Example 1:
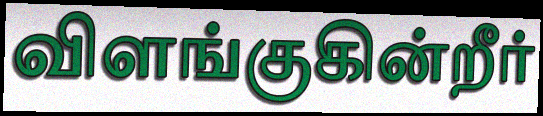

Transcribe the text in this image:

விளங்குகின்றீர்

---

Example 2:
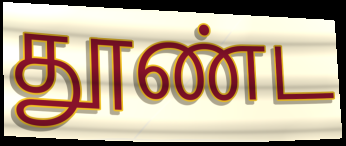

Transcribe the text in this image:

தூண்ட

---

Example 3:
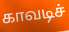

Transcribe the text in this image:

காவடிச்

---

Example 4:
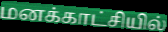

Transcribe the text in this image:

மனக்காட்சியில்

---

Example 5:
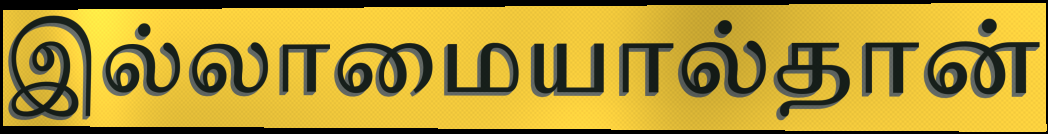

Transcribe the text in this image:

இல்லாமையால்தான்